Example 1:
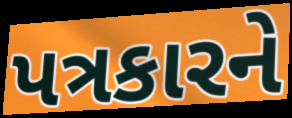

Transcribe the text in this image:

પત્રકારને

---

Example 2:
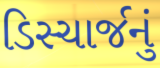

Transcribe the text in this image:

ડિસ્ચાર્જનું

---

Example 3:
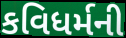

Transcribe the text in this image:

કવિધર્મની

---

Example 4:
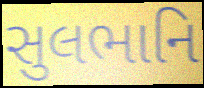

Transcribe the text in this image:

સુલભાનિ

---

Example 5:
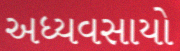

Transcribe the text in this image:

અધ્યવસાયો